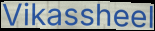
Vikassheel